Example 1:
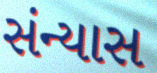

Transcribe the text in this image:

સંન્યાસ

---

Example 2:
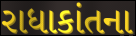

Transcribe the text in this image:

રાધાકાંતના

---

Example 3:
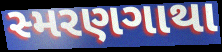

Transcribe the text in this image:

સ્મરણગાથા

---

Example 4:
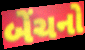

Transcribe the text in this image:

બેંચનો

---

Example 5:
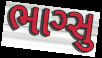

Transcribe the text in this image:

ભાગ્સુ